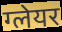
ग्लेयर